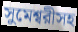
সুমেশ্বরীসহ